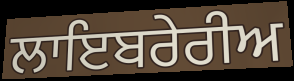
ਲਾਇਬਰੇਰੀਅ